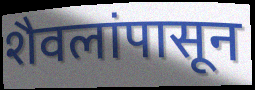
शैवलांपासून